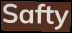
Safty